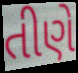
તીણે